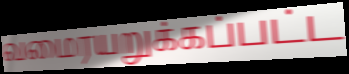
வமைரயறுக்கப்பட்ட